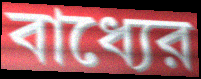
বাধ্যের